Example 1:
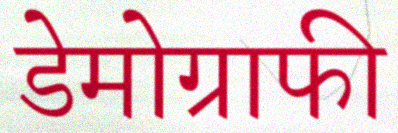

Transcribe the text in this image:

डेमोग्राफी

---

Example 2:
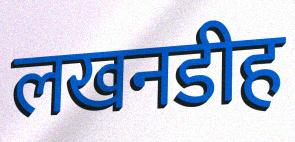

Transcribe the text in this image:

लखनडीह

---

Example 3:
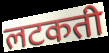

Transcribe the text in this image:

लटकती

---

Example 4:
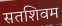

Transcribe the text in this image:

सतशिवम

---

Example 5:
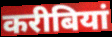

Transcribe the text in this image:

करीबियां